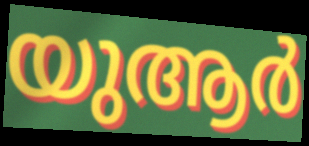
യുആർ